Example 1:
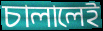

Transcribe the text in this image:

চালালেই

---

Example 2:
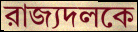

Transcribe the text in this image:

রাজ্যদলকে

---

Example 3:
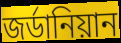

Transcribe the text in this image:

জর্ডানিয়ান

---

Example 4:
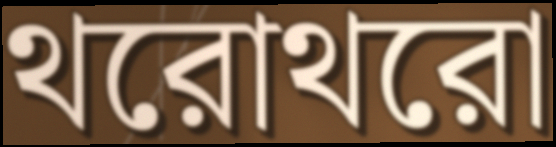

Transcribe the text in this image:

থরোথরো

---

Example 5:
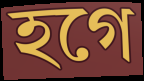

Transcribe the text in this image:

হগে